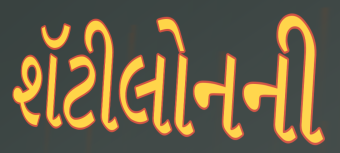
શૅટીલોનની